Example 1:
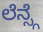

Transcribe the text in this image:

ಲೆನ್ಸ್ಗೆ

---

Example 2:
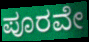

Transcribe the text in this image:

ಪೂರವೇ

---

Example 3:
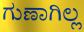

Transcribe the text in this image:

ಗುಣಾಗಿಲ್ಲ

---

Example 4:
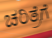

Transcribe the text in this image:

ಚರಿತ್ರೆಗೆ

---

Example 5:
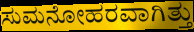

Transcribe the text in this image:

ಸುಮನೋಹರವಾಗಿತ್ತು